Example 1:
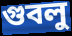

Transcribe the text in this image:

গুবলু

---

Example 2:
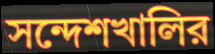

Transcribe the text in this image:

সন্দেশখালির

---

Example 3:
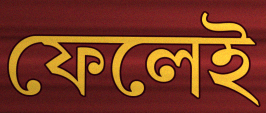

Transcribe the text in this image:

ফেলেই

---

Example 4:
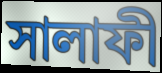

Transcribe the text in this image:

সালাফী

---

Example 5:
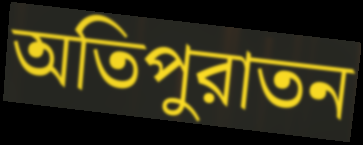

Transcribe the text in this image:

অতিপুরাতন